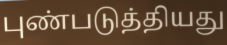
புண்படுத்தியது